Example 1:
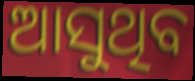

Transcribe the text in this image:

ଆସୁଥିବ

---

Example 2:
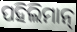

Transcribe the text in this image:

ପହିଲିମାନ୍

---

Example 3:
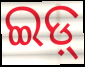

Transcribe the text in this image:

ଇଡ଼୍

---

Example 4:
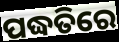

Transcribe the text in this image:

ପଦ୍ଧତିରେ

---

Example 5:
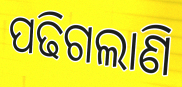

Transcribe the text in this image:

ପଢିଗଲାଣି